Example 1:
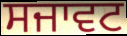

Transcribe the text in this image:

ਸਜਾਵਟ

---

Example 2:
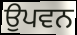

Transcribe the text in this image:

ਉਪਵਨ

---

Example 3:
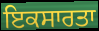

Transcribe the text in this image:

ਇਕਸਾਰਤਾ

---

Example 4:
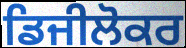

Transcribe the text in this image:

ਡਿਜੀਲੋਕਰ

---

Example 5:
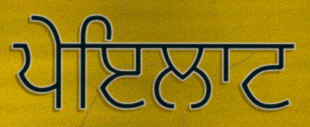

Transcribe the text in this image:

ਪੇਇਲਾਟ